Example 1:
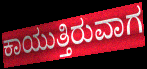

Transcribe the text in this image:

ಕಾಯುತ್ತಿರುವಾಗ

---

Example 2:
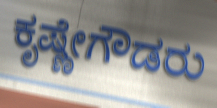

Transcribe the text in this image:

ಕೃಷ್ಣೇಗೌಡರು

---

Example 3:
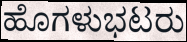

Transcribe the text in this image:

ಹೊಗಳುಭಟರು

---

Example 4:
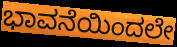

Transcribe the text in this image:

ಭಾವನೆಯಿಂದಲೇ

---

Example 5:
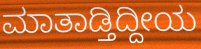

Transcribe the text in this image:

ಮಾತಾಡ್ತಿದ್ದೀಯ